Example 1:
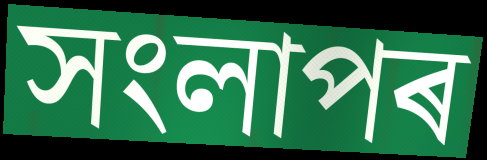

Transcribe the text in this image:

সংলাপৰ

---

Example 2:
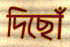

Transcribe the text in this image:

দিছোঁ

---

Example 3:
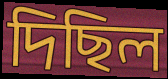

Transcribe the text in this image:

দিছিল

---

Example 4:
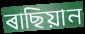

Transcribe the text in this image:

ৰাছিয়ান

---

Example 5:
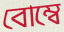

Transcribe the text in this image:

বোম্বে